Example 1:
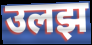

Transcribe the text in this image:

उलझ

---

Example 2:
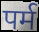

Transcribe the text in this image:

पर्म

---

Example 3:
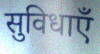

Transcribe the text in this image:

सुविधाएँ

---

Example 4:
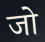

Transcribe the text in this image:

जो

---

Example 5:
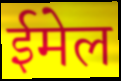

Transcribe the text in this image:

ईमेल